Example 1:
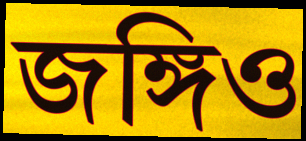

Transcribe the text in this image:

জঙ্গিও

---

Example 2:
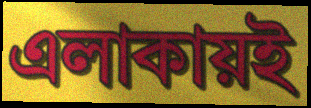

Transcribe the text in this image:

এলাকায়ই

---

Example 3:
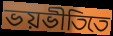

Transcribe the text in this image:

ভয়ভীতিতে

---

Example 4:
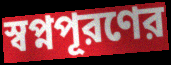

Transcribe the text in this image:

স্বপ্নপূরণের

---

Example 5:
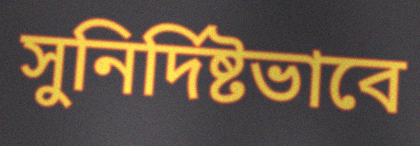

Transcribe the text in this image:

সুনির্দিষ্টভাবে